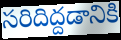
సరిదిద్దడానికి